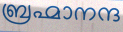
ബ്രഹ്മാനന്ദ